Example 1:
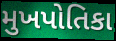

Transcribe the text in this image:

મુખપોતિકા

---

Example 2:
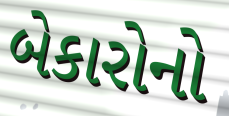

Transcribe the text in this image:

બેકારોનો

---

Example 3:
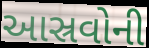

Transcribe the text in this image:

આસ્રવોની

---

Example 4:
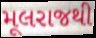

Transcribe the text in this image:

મૂલરાજથી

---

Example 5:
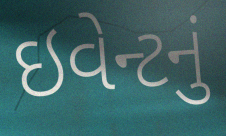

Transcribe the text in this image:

ઇવેન્ટનું